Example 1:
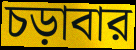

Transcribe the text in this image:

চড়াবার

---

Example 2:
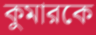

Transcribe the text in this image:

কুমারকে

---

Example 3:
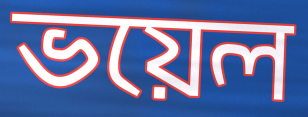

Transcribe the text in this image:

ভয়েল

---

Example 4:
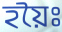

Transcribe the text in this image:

হয়ৈঃ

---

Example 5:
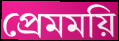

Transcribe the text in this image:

প্রেমময়ি